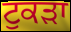
ਟੁਕਡ਼ਾ